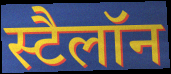
स्टैलॉन